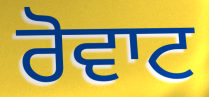
ਰੋਵਾਟ